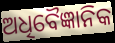
ଅଧିବୈଜ୍ଞାନିକ